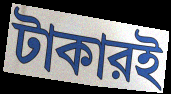
টাকারই